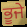
ਭੂਜੇ